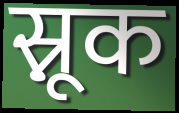
स्नूक